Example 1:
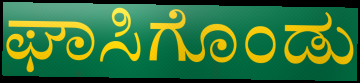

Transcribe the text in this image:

ಘಾಸಿಗೊಂಡು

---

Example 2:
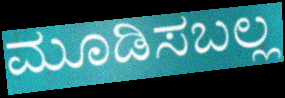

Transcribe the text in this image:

ಮೂಡಿಸಬಲ್ಲ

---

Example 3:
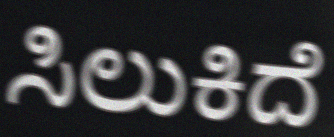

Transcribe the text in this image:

ಸಿಲುಕಿದೆ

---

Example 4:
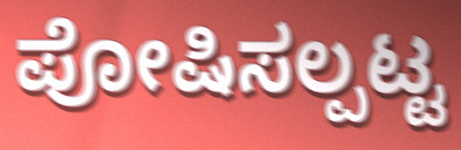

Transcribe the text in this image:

ಪೋಷಿಸಲ್ಪಟ್ಟ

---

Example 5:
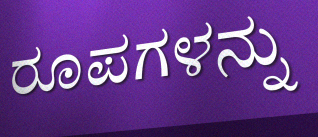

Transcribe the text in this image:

ರೂಪಗಳನ್ನು